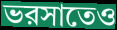
ভরসাতেও